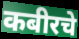
कबीरचे